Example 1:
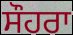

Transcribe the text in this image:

ਸੌਹਰਾ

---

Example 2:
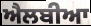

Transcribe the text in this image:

ਐਲਬੀਆ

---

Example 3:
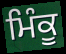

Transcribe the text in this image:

ਮਿੰਕੂ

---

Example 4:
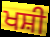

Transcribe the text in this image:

ਖਸ਼ੀ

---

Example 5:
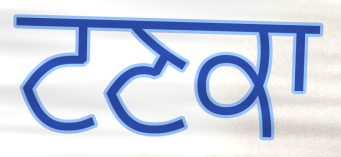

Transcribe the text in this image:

ਟਣਕਾ